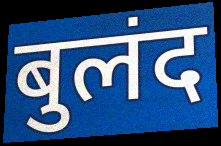
बुलंद